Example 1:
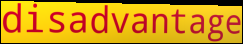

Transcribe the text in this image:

disadvantage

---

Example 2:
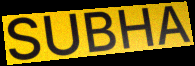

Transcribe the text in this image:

SUBHA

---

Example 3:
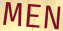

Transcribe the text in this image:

MEN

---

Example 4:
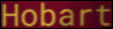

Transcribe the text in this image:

Hobart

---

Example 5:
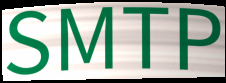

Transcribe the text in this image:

SMTP